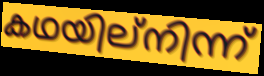
കഥയില്നിന്ന്